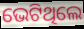
ଭେଟିଥିଲେ